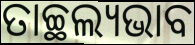
ତାଚ୍ଛଲ୍ୟଭାବ